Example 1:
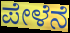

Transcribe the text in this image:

ಪೇಳೆನೆ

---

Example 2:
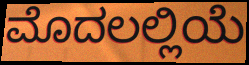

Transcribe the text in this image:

ಮೊದಲಲ್ಲಿಯೆ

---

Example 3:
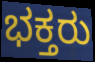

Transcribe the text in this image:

ಭಕ್ತರು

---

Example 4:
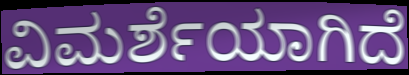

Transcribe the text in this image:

ವಿಮರ್ಶೆಯಾಗಿದೆ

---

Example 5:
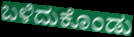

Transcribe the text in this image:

ಬಳಿದುಕೊಂಡು